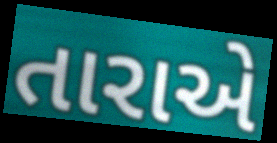
તારાએ